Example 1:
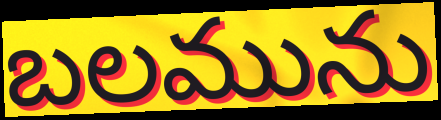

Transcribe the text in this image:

బలమును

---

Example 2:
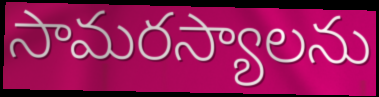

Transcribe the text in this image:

సామరస్యాలను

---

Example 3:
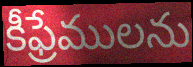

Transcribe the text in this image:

కీఫ్రేములను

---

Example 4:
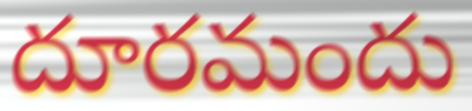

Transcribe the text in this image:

దూరమందు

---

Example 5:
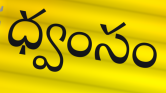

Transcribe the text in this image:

ధ్వంసం